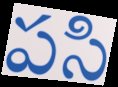
పసి